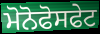
ਮੋਨੋਫੋਸਫੇਟ